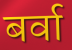
बर्वा